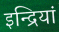
इन्द्रियां